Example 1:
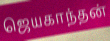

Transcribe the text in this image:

ஜெயகாந்தன்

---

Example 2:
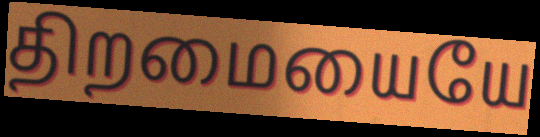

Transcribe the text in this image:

திறமையையே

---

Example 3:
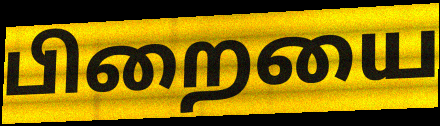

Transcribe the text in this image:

பிறையை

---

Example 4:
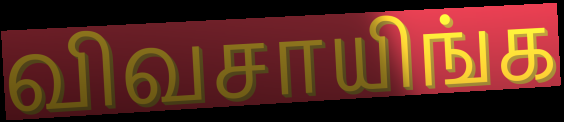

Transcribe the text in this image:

விவசாயிங்க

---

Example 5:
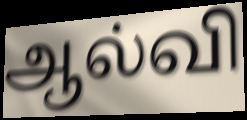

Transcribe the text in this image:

ஆல்வி